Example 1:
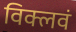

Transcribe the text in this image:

विक्लवं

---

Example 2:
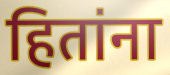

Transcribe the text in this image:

हितांना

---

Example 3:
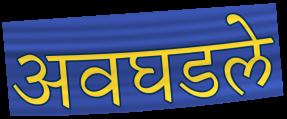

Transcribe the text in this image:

अवघडले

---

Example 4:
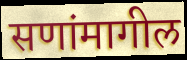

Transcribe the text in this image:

सणांमागील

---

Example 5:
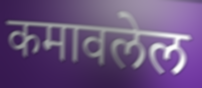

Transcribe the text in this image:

कमावलेल